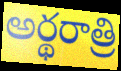
అర్థరాత్రి